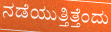
ನಡೆಯುತ್ತಿತ್ತೆಂದು